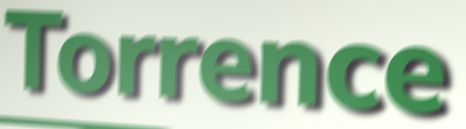
Torrence